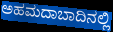
ಅಹಮದಾಬಾದಿನಲ್ಲಿ